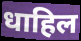
धाहिल